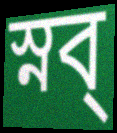
স্নব্